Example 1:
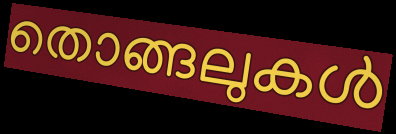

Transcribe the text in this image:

തൊങ്ങലുകൾ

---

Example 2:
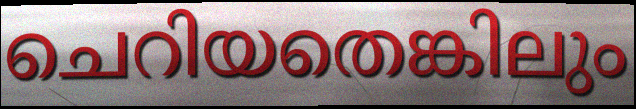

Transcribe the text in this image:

ചെറിയതെങ്കിലും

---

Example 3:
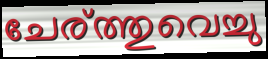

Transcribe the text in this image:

ചേര്ത്തുവെച്ചു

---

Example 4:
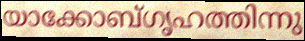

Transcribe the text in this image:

യാക്കോബ്ഗൃഹത്തിന്നു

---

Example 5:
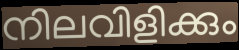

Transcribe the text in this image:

നിലവിളിക്കും